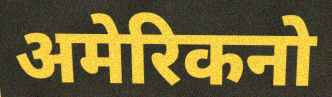
अमेरिकनो